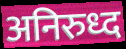
अनिरुध्द